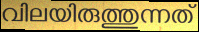
വിലയിരുത്തുന്നത്